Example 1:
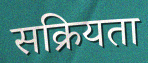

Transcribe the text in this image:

सक्रियता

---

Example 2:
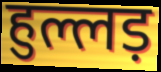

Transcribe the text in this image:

हुल्लड़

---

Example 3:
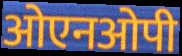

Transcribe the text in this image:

ओएनओपी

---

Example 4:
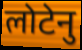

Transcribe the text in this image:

लोटेनु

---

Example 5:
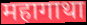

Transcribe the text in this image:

महागाथा